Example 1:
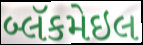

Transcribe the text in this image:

બ્લૅકમેઇલ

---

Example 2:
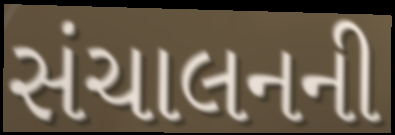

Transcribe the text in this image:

સંચાલનની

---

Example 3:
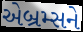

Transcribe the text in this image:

એબ્રમ્સને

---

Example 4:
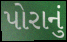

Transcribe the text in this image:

પોરાનું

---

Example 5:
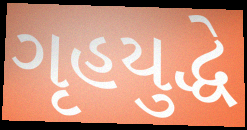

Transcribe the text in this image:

ગૃહયુદ્ધે